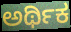
ಅರ್ಥಿಕ